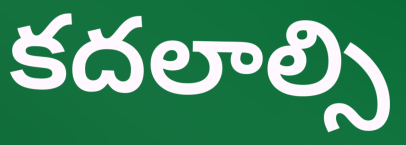
కదలాల్సి